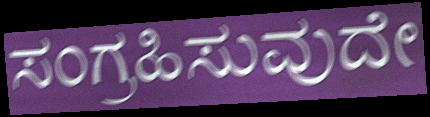
ಸಂಗ್ರಹಿಸುವುದೇ